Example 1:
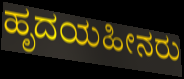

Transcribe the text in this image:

ಹೃದಯಹೀನರು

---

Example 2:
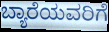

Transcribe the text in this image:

ಬ್ಯಾರೆಯವರಿಗೆ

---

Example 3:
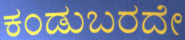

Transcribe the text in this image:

ಕಂಡುಬರದೇ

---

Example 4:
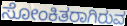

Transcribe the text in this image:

ಸೋಂಕಿತರಾಗಿರುವ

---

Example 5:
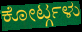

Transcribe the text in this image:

ಕೋರ್ಟ್ಗಳು